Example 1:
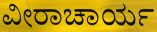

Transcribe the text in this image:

ವೀರಾಚಾರ್ಯ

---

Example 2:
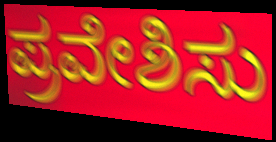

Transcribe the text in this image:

ಪ್ರವೇಶಿಸು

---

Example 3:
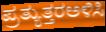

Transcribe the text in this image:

ಪ್ರತ್ಯುತ್ತರಅಳಿಸಿ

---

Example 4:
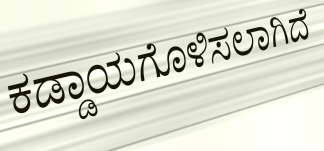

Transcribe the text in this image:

ಕಡ್ಡಾಯಗೊಳಿಸಲಾಗಿದೆ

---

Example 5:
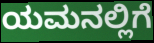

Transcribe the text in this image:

ಯಮನಲ್ಲಿಗೆ